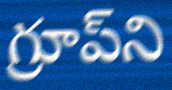
గ్రూప్‌ని